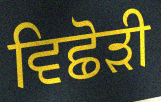
ਵਿਛੋੜੀ